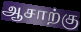
ஆசாற்கு